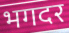
भगदर